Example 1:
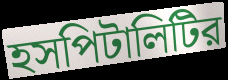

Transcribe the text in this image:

হসপিটালিটির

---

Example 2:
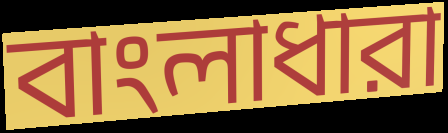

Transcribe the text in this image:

বাংলাধারা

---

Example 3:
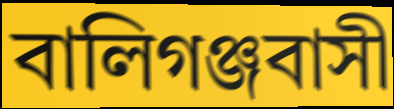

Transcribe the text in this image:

বালিগঞ্জবাসী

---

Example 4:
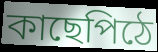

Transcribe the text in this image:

কাছেপিঠে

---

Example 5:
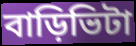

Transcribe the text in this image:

বাড়িভিটা